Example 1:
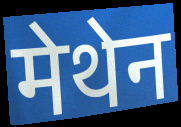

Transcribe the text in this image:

मेथेन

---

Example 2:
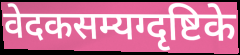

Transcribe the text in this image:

वेदकसम्यग्दृष्टिके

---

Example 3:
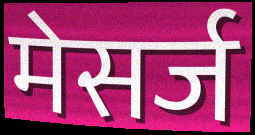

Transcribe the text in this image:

मेसर्ज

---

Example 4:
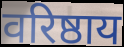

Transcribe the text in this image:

वरिष्ठाय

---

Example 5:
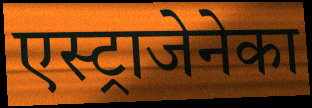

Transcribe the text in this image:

एस्‍ट्राजेनेका